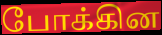
போக்கின